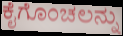
ಕೈಗೊಂಚಲನ್ನು